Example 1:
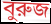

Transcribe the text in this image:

বুরুজ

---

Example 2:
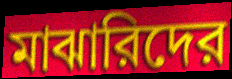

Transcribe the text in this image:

মাঝারিদের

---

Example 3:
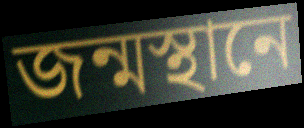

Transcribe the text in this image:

জন্মস্থানে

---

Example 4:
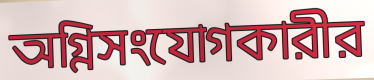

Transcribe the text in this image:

অগ্নিসংযোগকারীর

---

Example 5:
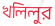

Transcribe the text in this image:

খলিলুর